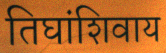
तिघांशिवाय